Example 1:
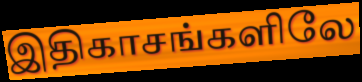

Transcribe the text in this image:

இதிகாசங்களிலே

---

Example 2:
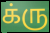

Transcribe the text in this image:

க்ரு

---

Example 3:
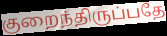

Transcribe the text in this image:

குறைந்திருப்பதே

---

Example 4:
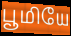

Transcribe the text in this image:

பூமியே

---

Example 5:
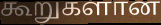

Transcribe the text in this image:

கூறுகளான